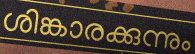
ശിങ്കാരക്കുന്നും